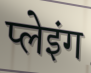
प्लेइंग